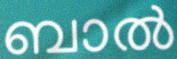
ബാൽ